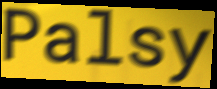
Palsy